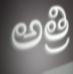
అత్రి